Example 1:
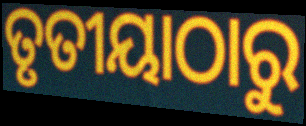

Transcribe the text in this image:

ତୃତୀୟାଠାରୁ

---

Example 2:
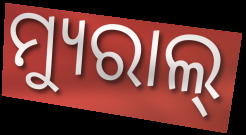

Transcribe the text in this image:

ମ୍ୟୁରାଲ୍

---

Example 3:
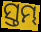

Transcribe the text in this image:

ସ୍ତମ୍ଭ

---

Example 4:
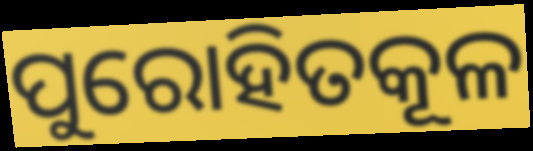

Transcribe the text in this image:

ପୁରୋହିତକୂଳ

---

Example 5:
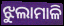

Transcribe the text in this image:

ଝୁଲାମାଳି